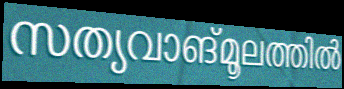
സത്യവാങ്മൂലത്തിൽ